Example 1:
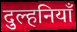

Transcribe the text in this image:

दुल्हनियाँ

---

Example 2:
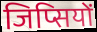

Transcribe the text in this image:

जिप्सियों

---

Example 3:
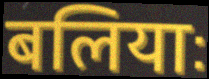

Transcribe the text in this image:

बलियाः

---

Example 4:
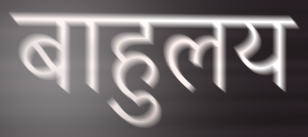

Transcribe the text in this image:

बाहुलय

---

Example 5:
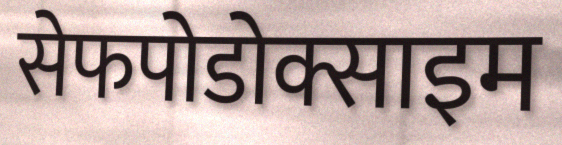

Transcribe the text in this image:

सेफपोडोक्साइम